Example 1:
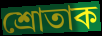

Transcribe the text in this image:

শ্ৰোতাক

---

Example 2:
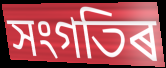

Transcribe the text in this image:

সংগতিৰ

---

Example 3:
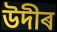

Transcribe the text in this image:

উদীৰ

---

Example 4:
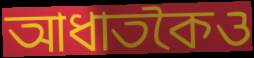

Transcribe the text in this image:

আধাতকৈও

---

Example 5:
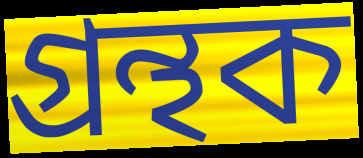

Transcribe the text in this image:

গ্ৰন্থক